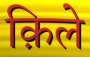
क़िले